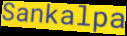
Sankalpa